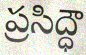
ప్రసిద్ధౌ